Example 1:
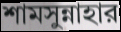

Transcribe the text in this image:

শামসুন্নাহার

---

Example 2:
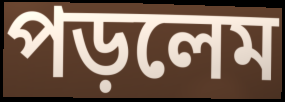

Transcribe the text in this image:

পড়লেম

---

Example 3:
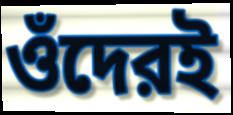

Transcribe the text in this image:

ওঁদেরই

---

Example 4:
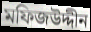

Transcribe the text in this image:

মফিজউদ্দীন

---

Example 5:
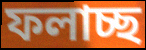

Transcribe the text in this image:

ফলাচ্ছ